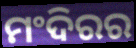
ମଂଦିରର